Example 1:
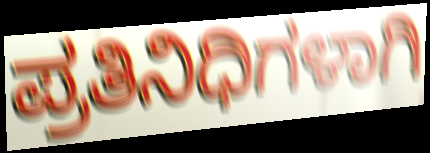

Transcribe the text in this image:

ಪ್ರತಿನಿಧಿಗಳಾಗಿ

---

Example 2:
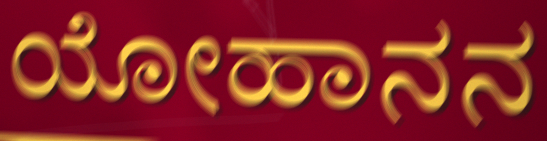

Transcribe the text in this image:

ಯೋಹಾನನ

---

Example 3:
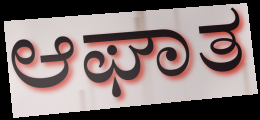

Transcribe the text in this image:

ಆಘಾತ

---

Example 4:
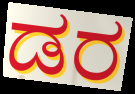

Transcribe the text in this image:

ಡರ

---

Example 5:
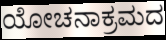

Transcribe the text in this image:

ಯೋಚನಾಕ್ರಮದ